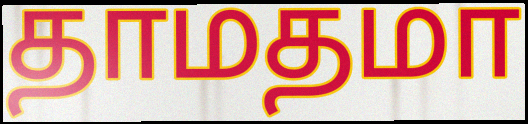
தாமதமா